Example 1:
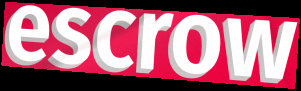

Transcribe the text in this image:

escrow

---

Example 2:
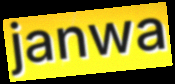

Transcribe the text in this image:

janwa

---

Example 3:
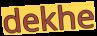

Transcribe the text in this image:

dekhe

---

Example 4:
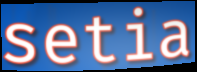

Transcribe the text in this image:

setia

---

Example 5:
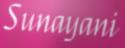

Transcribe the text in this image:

Sunayani